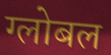
ग्लोबल